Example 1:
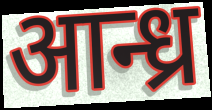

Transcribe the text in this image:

आन्ध्र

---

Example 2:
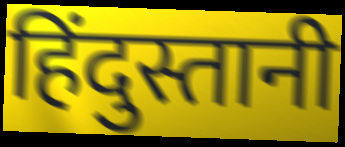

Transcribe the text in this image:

हिंदुस्तानी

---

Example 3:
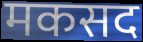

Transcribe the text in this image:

मकसद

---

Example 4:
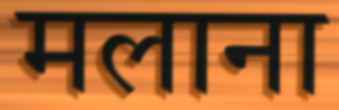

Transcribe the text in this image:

मलाना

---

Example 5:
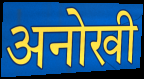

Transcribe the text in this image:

अनोखी